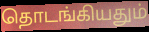
தொடங்கியதும்